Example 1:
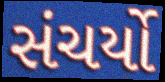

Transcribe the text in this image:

સંચર્યો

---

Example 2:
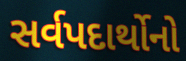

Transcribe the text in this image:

સર્વપદાર્થોનો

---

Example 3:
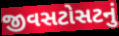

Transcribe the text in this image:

જીવસટોસટનું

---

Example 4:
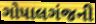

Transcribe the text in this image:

ગોપાલગંજની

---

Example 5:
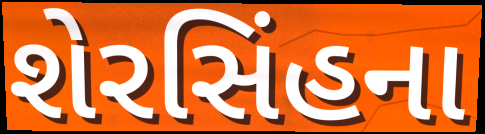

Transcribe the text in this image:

શેરસિંહના